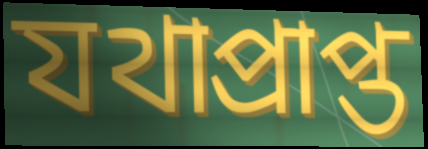
যথাপ্ৰাপ্ত